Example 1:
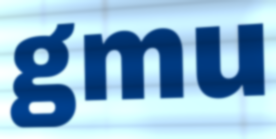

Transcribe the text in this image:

gmu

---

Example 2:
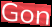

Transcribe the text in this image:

Gon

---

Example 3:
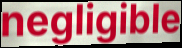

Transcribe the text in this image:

negligible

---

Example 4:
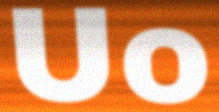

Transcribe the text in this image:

Uo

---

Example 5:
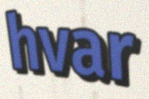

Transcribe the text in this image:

hvar